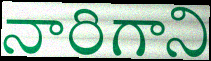
నారిగాని